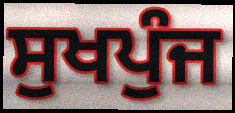
ਸੁਖਪੁੰਜ